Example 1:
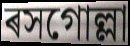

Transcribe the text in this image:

ৰসগোল্লা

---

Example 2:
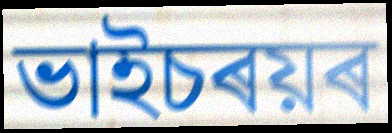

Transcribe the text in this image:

ভাইচৰয়ৰ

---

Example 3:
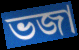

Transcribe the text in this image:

ভজা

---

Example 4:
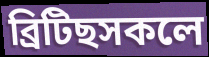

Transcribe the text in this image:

ব্ৰিটিছসকলে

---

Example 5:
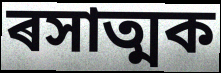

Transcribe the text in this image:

ৰসাত্মক